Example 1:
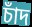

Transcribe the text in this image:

চাঁদ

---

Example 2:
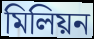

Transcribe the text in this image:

মিলিয়ন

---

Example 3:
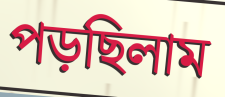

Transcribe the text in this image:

পড়ছিলাম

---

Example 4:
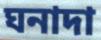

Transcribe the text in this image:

ঘনাদা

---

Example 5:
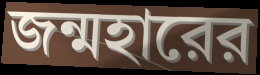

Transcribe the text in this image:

জন্মহারের